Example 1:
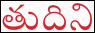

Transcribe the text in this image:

తుదిని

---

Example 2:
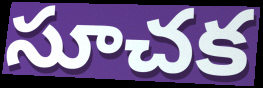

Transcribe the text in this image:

సూచక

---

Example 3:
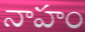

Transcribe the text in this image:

నాహం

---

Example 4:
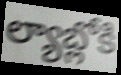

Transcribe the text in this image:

ల్యాబ్లోకి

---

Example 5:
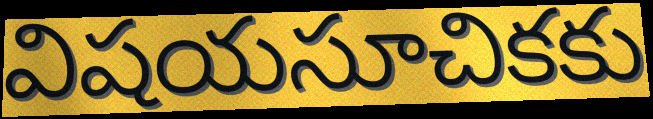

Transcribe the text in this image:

విషయసూచికకు